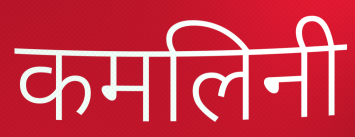
कमलिनी